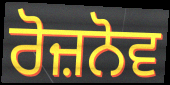
ਰੋਜ਼ਨੋਵ